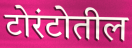
टोरंटोतील